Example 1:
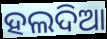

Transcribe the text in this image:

ହଲଦିଆ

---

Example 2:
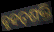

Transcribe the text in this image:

ବୃହତ୍‌ଶକ୍ତି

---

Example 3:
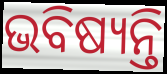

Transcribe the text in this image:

ଭବିଷ୍ୟନ୍ତି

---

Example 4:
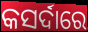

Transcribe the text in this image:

କସର୍ଦାରେ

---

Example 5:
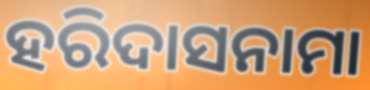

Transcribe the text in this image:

ହରିଦାସନାମା